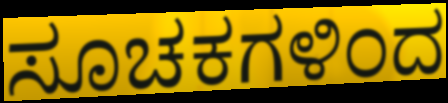
ಸೂಚಕಗಳಿಂದ